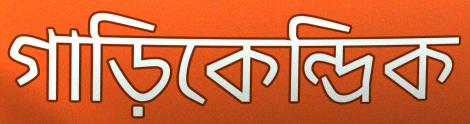
গাড়িকেন্দ্রিক